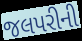
જલપરીની